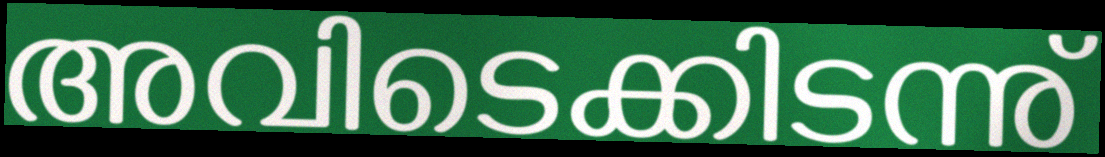
അവിടെക്കിടന്നു്